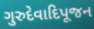
ગુરુદેવાદિપૂજન